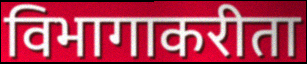
विभागाकरीता